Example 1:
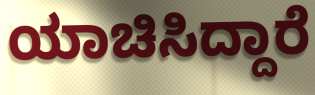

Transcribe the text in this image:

ಯಾಚಿಸಿದ್ದಾರೆ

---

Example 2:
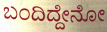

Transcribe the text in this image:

ಬಂದಿದ್ದೇನೋ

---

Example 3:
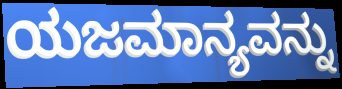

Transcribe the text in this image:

ಯಜಮಾನ್ಯವನ್ನು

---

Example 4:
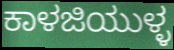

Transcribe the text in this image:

ಕಾಳಜಿಯುಳ್ಳ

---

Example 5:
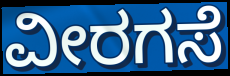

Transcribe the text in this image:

ವೀರಗಸೆ